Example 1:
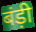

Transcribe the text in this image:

बंड़ी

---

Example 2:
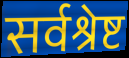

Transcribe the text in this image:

सर्वश्रेष्ट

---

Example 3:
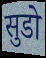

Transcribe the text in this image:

सुडो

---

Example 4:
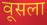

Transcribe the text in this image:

वूसला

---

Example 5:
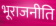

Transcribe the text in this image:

भूराजनीति